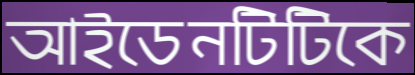
আইডেনটিটিকে